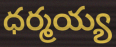
ధర్మయ్య